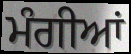
ਮੰਗੀਆਂ